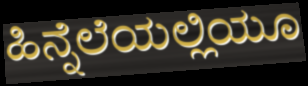
ಹಿನ್ನೆಲೆಯಲ್ಲಿಯೂ